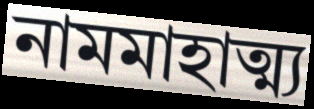
নামমাহাত্ম্য